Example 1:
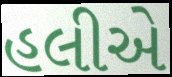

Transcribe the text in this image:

હલીએ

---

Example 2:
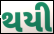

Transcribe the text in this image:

થયી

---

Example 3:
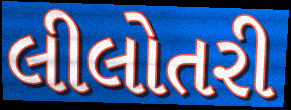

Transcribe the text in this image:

લીલોતરી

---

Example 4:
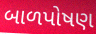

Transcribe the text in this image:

બાળપોષણ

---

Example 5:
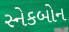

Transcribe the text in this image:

સ્નેકબોન